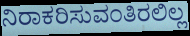
ನಿರಾಕರಿಸುವಂತಿರಲಿಲ್ಲ